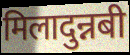
मिलादुन्नबी